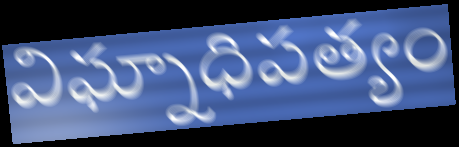
విఘ్నాధిపత్యం